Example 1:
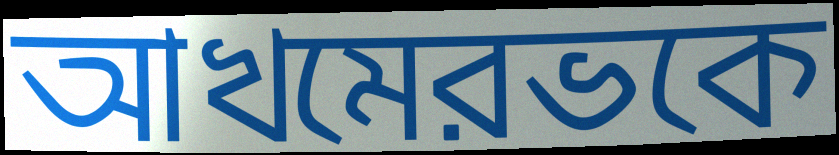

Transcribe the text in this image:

আখমেরভকে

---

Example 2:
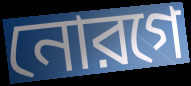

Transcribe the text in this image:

নোরগে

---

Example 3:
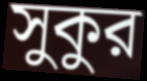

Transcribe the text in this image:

সুকুর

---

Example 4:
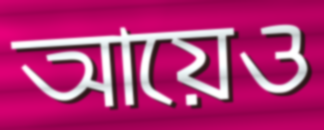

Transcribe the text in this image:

আয়েও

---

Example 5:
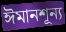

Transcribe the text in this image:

ঈমানশূন্য